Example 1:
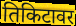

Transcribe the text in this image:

तिकिटावर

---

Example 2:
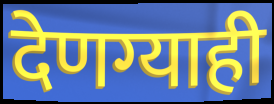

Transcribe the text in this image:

देणग्याही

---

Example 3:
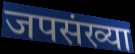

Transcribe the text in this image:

जपसंख्या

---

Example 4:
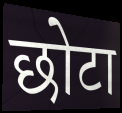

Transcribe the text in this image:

छोटा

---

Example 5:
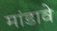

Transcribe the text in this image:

मांडावे